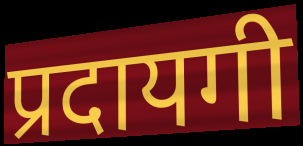
प्रदायगी